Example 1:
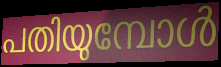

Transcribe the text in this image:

പതിയുമ്പോൾ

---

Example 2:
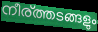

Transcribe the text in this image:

നീര്ത്തടങ്ങളും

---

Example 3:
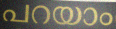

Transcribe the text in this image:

പറയാം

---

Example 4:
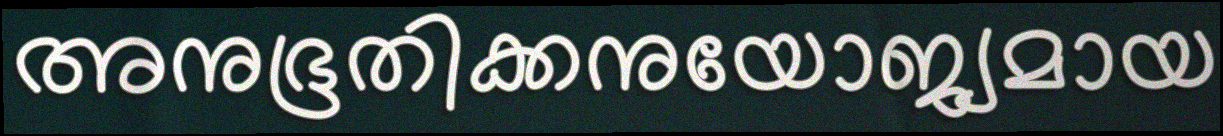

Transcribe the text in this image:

അനുഭൂതിക്കനുയോജ്യമായ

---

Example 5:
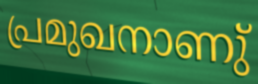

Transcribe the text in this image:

പ്രമുഖനാണു്